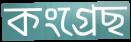
কংগ্ৰেছ